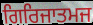
ਗਿਰਿਜਾਤਮਜ